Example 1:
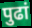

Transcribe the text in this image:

पुढां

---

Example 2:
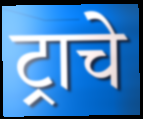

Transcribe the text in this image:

ट्राचे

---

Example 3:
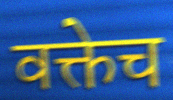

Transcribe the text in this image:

वक्तेच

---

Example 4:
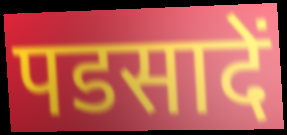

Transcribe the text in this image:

पडसादें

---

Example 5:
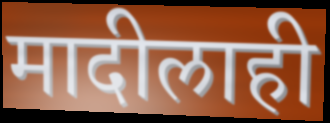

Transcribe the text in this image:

मादीलाही